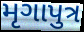
મૃગાપુત્ર